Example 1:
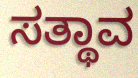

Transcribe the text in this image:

ಸತ್ಥಾವ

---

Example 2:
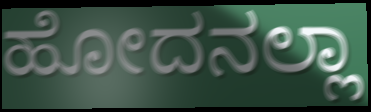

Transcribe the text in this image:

ಹೋದನಲ್ಲಾ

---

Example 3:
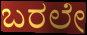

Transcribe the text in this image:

ಬರಲೇ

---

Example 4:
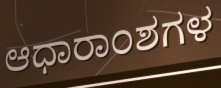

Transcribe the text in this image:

ಆಧಾರಾಂಶಗಳ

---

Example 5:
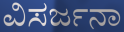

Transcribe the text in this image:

ವಿಸರ್ಜನಾ